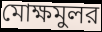
মোক্ষমুলর